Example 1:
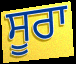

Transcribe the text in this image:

ਸੂਰਾ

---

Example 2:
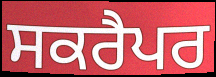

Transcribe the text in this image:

ਸਕਰੈਪਰ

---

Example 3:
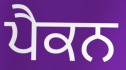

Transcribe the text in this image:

ਪੈਕਨ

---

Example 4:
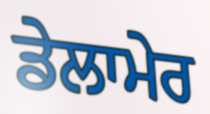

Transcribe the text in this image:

ਡੇਲਾਮੇਰ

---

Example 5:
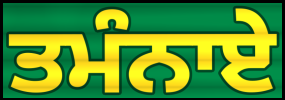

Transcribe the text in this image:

ਤਮੰਨਾਏ